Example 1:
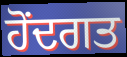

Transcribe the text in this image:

ਹੋਂਦਗਤ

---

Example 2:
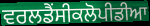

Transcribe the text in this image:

ਵਰਲਡੈਂਸੀਕਲੋਪੀਡੀਆ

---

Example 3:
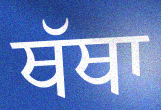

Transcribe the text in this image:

ਥੱਥਾ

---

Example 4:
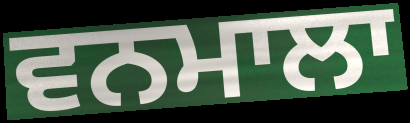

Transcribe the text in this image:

ਵਨਮਾਲਾ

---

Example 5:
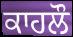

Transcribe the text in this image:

ਕਾਹਲੌ